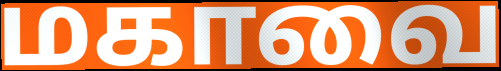
மகாவை